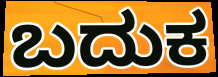
ಬದುಕ